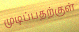
முடிப்பதற்குள்